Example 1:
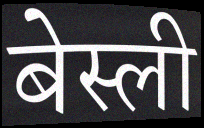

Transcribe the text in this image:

बेस्ली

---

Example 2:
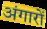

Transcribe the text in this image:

अंगारों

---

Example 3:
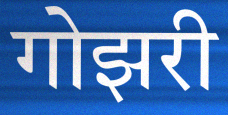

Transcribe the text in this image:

गोझरी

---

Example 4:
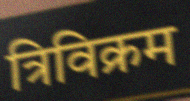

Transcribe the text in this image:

त्रिविक्रम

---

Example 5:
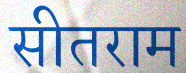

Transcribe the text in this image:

सीतराम